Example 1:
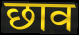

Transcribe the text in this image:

छाव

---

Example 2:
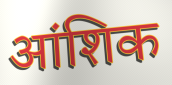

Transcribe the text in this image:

आंशिक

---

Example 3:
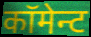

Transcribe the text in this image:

कॉमेन्ट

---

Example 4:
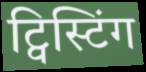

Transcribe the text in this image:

ट्विस्टिंग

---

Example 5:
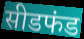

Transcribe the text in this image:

सीडफंड